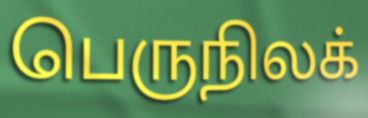
பெருநிலக்